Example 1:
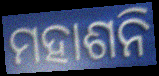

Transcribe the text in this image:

ମହାଶନି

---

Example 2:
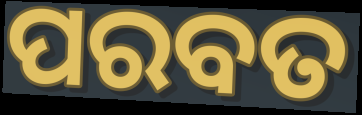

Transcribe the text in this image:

ପରବତ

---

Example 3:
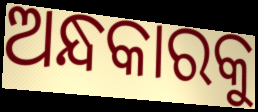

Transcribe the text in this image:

ଅନ୍ଧକାରକୁ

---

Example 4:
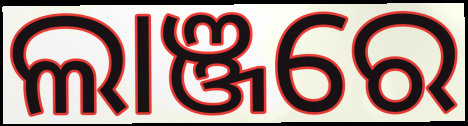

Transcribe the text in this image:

ଲାଞ୍ଜରେ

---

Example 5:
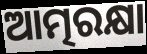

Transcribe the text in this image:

ଆତ୍ମରକ୍ଷା